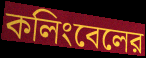
কলিংবেলের